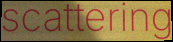
scattering